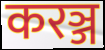
करञ्ज